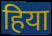
हिया